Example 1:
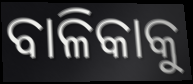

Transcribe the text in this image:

ବାଳିକାକୁ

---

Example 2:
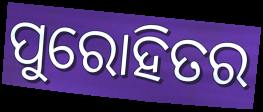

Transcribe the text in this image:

ପୁରୋହିତର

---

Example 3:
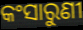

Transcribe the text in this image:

କଂସାରୁଣୀ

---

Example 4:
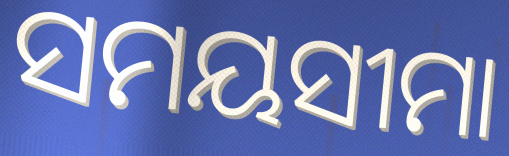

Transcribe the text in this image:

ସମୟସୀମା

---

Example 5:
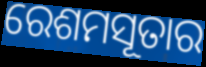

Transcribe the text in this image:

ରେଶମସୂତାର